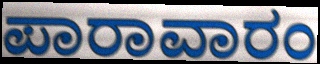
ಪಾರಾವಾರಂ